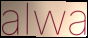
alwa